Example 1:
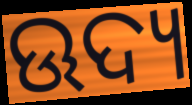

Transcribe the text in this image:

ଊଦ୍ୟ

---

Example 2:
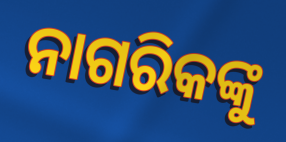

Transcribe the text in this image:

ନାଗରିକଙ୍କୁ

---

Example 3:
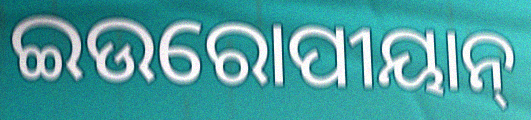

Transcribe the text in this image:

ଇଉରୋପୀୟାନ୍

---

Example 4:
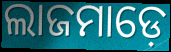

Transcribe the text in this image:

ଲାଜମାଡ଼େ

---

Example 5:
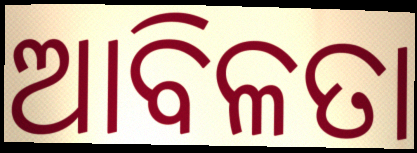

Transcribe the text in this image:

ଆବିଳତା